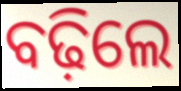
ବଢ଼ିଲେ